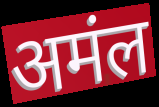
अमंल